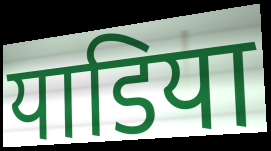
याडिया